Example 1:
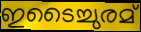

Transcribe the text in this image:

ഇടൈച്ചുരമ്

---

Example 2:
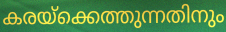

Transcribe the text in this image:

കരയ്ക്കെത്തുന്നതിനും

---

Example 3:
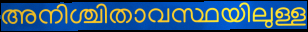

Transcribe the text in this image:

അനിശ്ചിതാവസ്ഥയിലുള്ള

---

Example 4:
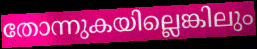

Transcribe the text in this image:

തോന്നുകയില്ലെങ്കിലും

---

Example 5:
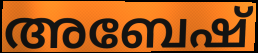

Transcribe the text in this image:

അബേഷ്